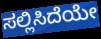
ಸಲ್ಲಿಸಿದೆಯೇ